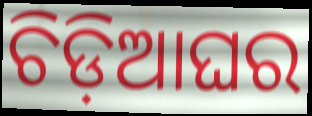
ଚିଡ଼ିଆଘର